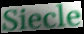
Siecle